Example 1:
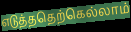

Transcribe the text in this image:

எடுத்ததெற்கெல்லாம்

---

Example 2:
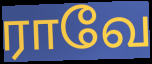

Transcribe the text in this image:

ராவே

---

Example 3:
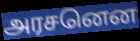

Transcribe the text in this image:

அரசனென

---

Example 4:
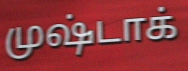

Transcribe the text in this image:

முஷ்டாக்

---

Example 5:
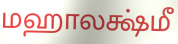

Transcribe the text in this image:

மஹாலக்ஷ்மீ